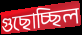
গুছোচ্ছিল